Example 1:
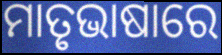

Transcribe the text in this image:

ମାତୃଭାଷାରେ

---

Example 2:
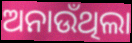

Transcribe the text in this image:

ଅନାଉଁଥିଲା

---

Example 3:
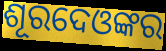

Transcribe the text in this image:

ଶୂରଦେଓଙ୍କର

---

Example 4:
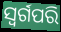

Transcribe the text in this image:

ସ୍ୱର୍ଗପରି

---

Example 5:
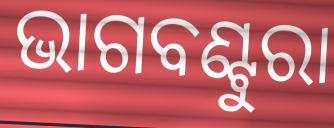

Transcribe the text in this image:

ଭାଗବଣ୍ଟୁରା